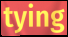
tying